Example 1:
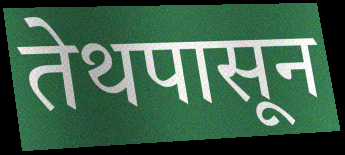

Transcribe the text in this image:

तेथपासून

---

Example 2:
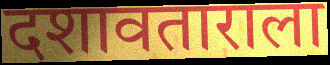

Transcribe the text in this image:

दशावताराला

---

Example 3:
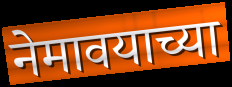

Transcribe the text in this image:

नेमावयाच्या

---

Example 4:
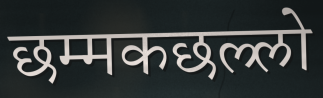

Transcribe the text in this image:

छम्मकछल्लो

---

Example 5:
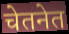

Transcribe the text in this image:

चेतनेत